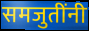
समजुतींनी